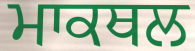
ਮਾਕਥਲ